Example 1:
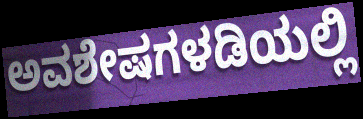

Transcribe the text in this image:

ಅವಶೇಷಗಳಡಿಯಲ್ಲಿ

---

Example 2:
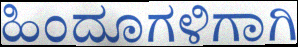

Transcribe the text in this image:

ಹಿಂದೂಗಳಿಗಾಗಿ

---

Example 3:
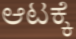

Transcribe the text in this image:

ಆಟಕ್ಕೆ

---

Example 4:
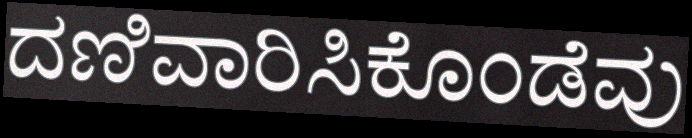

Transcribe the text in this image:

ದಣಿವಾರಿಸಿಕೊಂಡೆವು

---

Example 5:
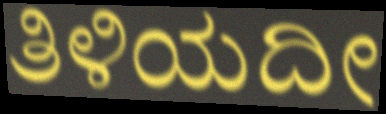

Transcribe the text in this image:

ತಿಳಿಯದೀ